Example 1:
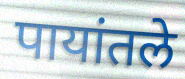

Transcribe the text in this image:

पायांतले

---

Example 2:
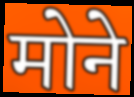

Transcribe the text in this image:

मोने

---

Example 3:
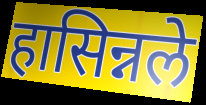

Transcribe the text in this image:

हासिन्नले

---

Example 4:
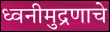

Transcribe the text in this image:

ध्वनीमुद्रणाचे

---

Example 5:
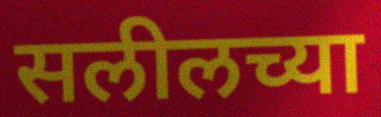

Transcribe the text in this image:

सलीलच्या